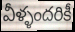
వీళ్ళందరికీ